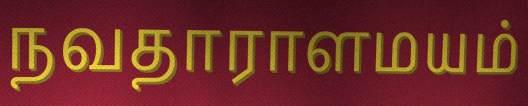
நவதாராளமயம்